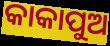
କାକାପୁଅ